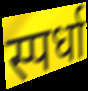
स्पर्धा